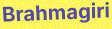
Brahmagiri